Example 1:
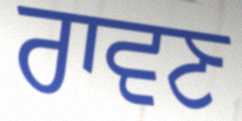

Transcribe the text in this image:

ਰਾਵਣ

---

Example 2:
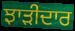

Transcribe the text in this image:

ਝਾੜੀਦਾਰ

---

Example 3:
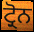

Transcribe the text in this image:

ਟ੍ਰੋਨ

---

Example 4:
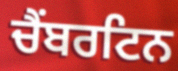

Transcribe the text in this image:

ਚੈਂਬਰਟਿਨ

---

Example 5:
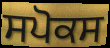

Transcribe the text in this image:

ਸਪੋਕਸ